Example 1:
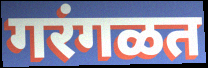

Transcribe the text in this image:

गरंगळत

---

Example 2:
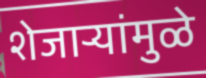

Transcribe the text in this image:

शेजाऱ्यांमुळे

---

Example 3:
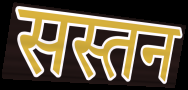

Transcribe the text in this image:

सस्तन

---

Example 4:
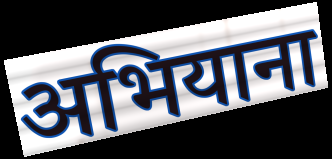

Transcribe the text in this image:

अभियाना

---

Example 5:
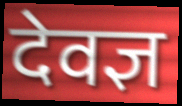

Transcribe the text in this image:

देवज्ञ